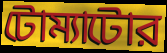
টোম্যাটোর